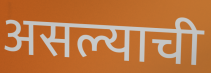
असल्याची